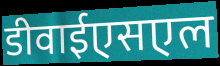
डीवाईएसएल